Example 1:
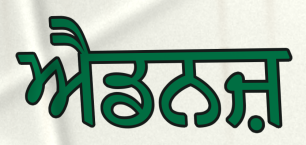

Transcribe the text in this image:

ਐਡਨਜ਼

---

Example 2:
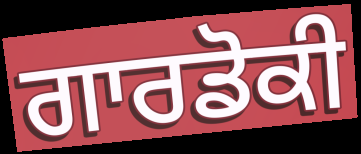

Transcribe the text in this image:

ਗਾਰਡੋਕੀ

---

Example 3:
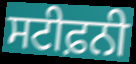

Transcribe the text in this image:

ਸਟੀਫ਼ਨੀ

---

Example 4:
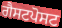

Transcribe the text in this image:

ਗੈਸਟਪੋਸਟ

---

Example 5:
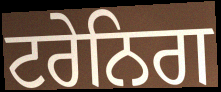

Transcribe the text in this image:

ਟਰੇਨਿਗ